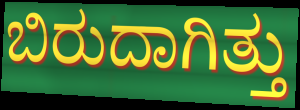
ಬಿರುದಾಗಿತ್ತು